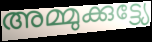
അമ്മുക്കുട്ട്യേ